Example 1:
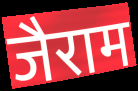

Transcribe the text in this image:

जैराम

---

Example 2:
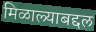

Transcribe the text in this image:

मिळाल्याबद्दल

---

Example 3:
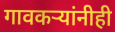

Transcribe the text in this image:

गावकऱ्यांनीही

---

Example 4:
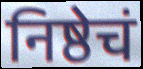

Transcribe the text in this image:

निष्ठेचं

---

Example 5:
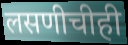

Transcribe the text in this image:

लसणीचीही